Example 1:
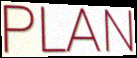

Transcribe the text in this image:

PLAN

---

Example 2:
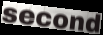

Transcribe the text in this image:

second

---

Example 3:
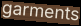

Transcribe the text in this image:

garments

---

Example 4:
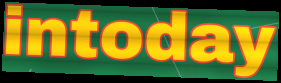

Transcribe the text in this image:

intoday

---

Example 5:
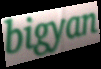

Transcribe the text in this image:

bigyan